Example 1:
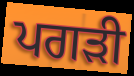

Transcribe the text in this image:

ਪਗੜੀ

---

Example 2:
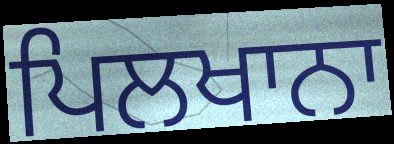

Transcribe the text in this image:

ਪਿਲਖਾਨਾ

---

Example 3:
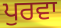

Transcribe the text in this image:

ਪੁਰਵਾ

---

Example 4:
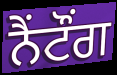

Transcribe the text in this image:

ਨੈਂਟੌਂਗ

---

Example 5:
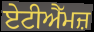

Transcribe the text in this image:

ਏਟੀਐੱਮਜ਼